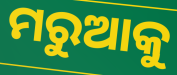
ମରୁଆକୁ